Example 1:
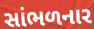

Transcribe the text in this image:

સાંભળનાર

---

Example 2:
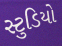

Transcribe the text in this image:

સ્ટુડિયો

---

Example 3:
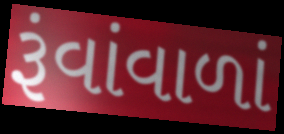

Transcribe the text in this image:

રૂંવાંવાળાં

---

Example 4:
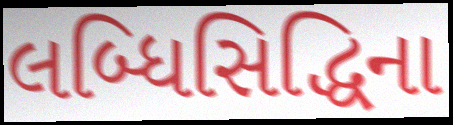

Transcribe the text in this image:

લબ્ધિસિદ્ધિના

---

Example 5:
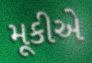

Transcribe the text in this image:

મૂકીએ